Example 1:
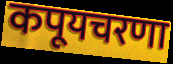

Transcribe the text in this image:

कपूयचरणा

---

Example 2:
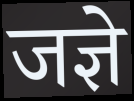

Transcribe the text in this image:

जज्ञे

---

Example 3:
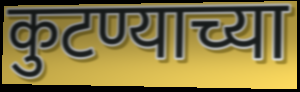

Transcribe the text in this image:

कुटण्याच्या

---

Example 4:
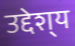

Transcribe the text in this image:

उद्देश्य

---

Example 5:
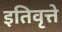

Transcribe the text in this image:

इतिवृत्ते